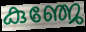
കുഞ്ജേ